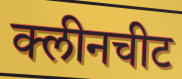
क्लीनचीट